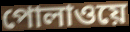
পোলাওয়ে